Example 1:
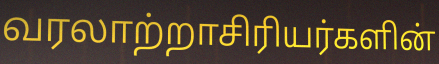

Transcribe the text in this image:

வரலாற்றாசிரியர்களின்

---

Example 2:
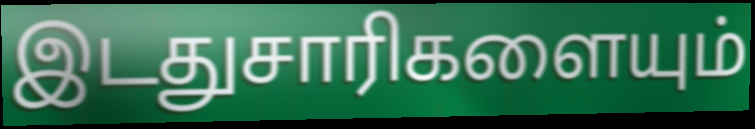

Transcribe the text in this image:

இடதுசாரிகளையும்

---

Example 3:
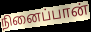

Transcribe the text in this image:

நினைப்பான்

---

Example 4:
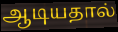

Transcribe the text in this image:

ஆடியதால்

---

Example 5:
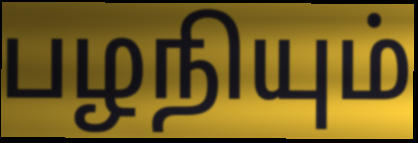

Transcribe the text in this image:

பழநியும்